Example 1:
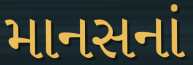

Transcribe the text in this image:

માનસનાં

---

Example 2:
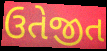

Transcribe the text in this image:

ઉતેજીત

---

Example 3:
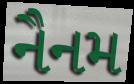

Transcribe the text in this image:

નૈનમ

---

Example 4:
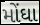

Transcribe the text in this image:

મોંઘા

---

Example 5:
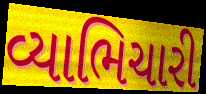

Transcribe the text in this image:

વ્યાભિચારી